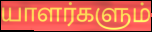
யாளர்களும்